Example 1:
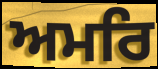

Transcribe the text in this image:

ਅਮਰਿ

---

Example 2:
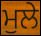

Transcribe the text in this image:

ਮੁਲੇ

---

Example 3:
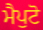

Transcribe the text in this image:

ਮੈਪੁਟੋ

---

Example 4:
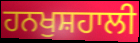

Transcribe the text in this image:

ਹਨਖੁਸ਼ਹਾਲੀ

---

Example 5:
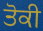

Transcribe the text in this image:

ਤੋਕੀ